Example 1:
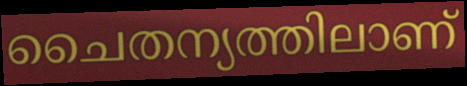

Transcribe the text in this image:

ചൈതന്യത്തിലാണ്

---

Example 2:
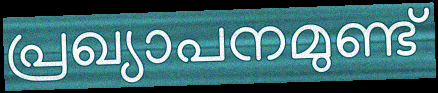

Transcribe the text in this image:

പ്രഖ്യാപനമുണ്ട്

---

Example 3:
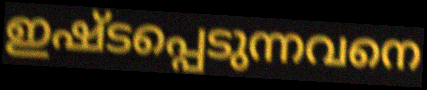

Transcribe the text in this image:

ഇഷ്ടപ്പെടുന്നവനെ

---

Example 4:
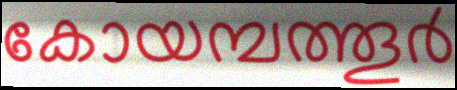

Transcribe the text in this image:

കോയമ്പത്തൂർ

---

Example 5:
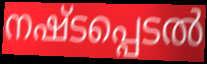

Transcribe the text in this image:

നഷ്ടപ്പെടൽ